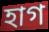
হাগ